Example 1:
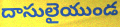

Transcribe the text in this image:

దాసులైయుండ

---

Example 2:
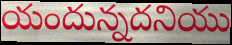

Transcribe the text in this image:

యందున్నదనియు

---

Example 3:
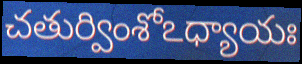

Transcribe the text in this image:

చతుర్వింశోఽధ్యాయః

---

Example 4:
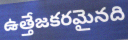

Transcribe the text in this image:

ఉత్తేజకరమైనది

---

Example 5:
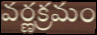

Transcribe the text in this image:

వర్ణక్రమం